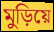
মুড়িয়ে